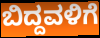
ಬಿದ್ದವಳಿಗೆ